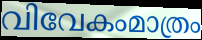
വിവേകംമാത്രം